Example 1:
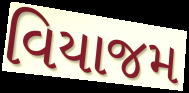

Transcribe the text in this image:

વિયાજમ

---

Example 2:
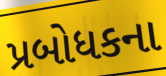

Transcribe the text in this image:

પ્રબોધકના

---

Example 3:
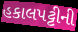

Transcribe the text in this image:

હકાલપટ્ટીની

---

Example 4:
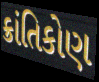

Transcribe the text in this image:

ક્રાંતિકોણ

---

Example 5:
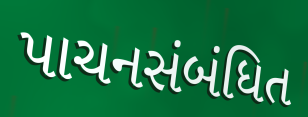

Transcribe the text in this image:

પાચનસંબંધિત